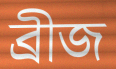
ব্রীজ